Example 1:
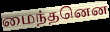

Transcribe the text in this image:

மைந்தனென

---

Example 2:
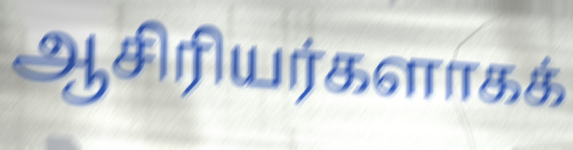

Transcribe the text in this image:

ஆசிரியர்களாகக்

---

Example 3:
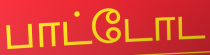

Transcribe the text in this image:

பாட்டோட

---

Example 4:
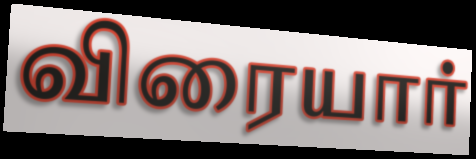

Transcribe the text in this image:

விரையார்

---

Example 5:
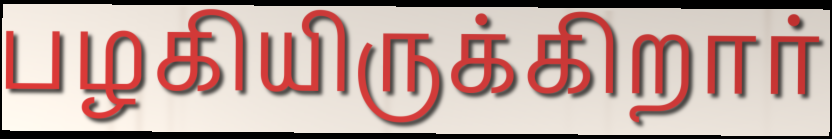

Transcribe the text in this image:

பழகியிருக்கிறார்